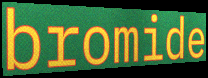
bromide